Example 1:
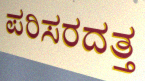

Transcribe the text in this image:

ಪರಿಸರದತ್ತ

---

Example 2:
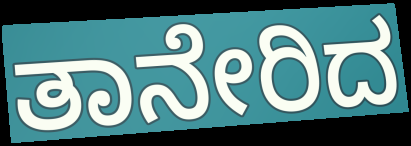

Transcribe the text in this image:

ತಾನೇರಿದ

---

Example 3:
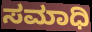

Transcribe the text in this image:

ಸಮಾಧಿ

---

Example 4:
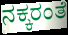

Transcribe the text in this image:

ನಕ್ಕರಂತೆ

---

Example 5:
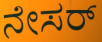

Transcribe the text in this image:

ನೇಸರ್